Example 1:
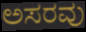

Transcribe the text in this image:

ಅಸರವು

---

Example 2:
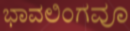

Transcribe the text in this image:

ಭಾವಲಿಂಗವೂ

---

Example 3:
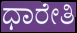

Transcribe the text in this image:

ಧಾರೇತಿ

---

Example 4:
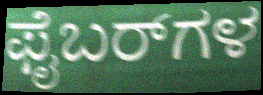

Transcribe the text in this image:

ಫೈಬರ್‌ಗಳ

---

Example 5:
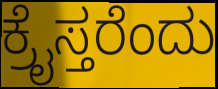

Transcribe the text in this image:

ಕ್ರೈಸ್ತರೆಂದು